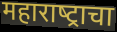
महाराष्ट्राचा